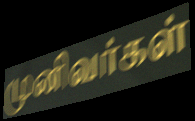
முனிவர்கள்